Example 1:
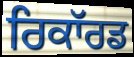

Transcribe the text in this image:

ਰਿਕਾੱਰਡ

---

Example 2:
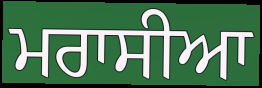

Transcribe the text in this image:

ਮਰਾਸੀਆ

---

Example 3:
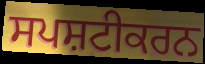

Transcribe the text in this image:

ਸਪਸ਼ਟੀਕਰਨ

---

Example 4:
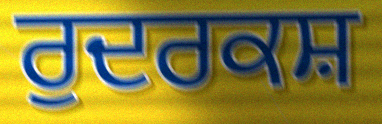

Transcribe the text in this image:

ਰੁਦਰਕਸ਼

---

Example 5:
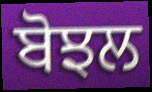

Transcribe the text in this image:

ਬੋਝਲ